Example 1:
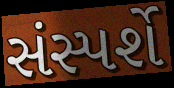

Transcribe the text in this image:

સંસ્પર્શે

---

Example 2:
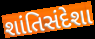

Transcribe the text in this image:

શાંતિસંદેશા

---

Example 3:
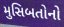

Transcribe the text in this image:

મુસિબતોનો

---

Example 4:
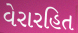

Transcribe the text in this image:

વેરારહિત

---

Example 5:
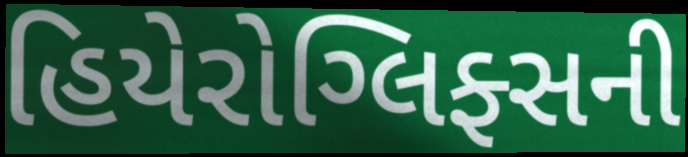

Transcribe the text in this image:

હિયેરોગ્લિફ્સની